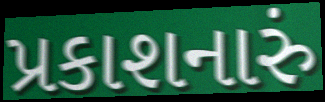
પ્રકાશનારું